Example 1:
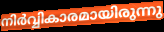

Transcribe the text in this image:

നിർവ്വികാരമായിരുന്നു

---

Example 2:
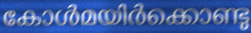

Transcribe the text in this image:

കോൾമയിർക്കൊണ്ടു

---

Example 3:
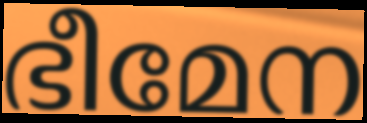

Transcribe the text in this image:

ഭീമേന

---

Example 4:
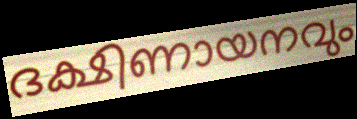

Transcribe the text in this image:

ദക്ഷിണായനവും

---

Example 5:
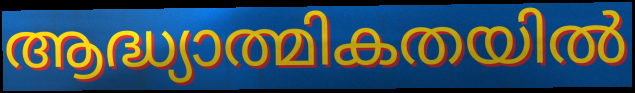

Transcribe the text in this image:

ആദ്ധ്യാത്മികതയിൽ